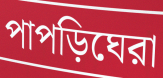
পাপড়িঘেরা